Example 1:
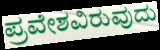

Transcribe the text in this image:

ಪ್ರವೇಶವಿರುವುದು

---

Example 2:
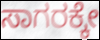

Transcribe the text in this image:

ಸಾಗರಕ್ಕೇ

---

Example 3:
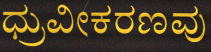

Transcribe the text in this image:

ಧ್ರುವೀಕರಣವು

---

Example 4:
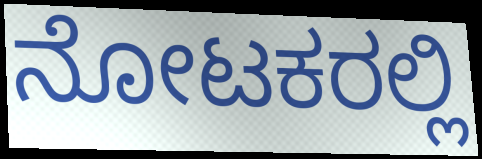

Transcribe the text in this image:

ನೋಟಕರಲ್ಲಿ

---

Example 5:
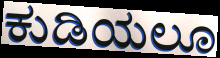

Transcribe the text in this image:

ಕುಡಿಯಲೂ